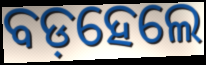
ବଡ଼ହେଲେ